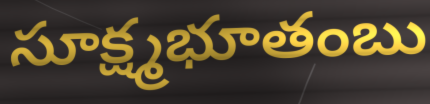
సూక్ష్మభూతంబు